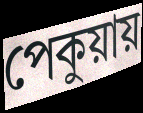
পেকুয়ায়